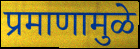
प्रमाणामुळे